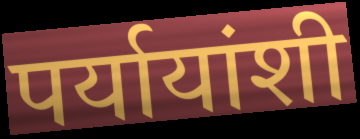
पर्यायांशी